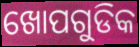
ଖୋପଗୁଡିକ